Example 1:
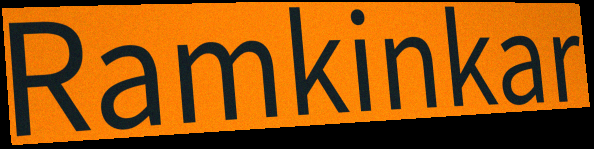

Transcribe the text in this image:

Ramkinkar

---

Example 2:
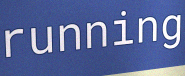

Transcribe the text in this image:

running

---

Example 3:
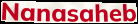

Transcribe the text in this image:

Nanasaheb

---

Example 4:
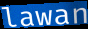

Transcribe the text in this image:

lawan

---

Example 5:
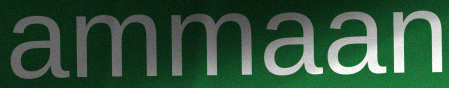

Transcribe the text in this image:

ammaan